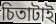
চিতাটাই